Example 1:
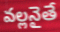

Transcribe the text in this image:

వల్లనైతే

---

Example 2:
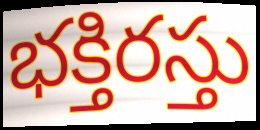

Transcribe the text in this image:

భక్తిరస్తు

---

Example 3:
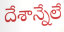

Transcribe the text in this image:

దేశాన్నేలే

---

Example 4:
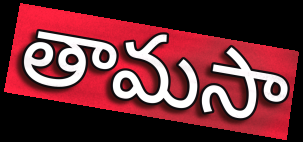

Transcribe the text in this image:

తామసా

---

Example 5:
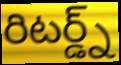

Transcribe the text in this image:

రిటర్డ్న్